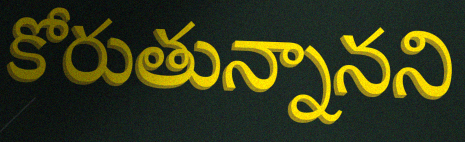
కోరుతున్నానని